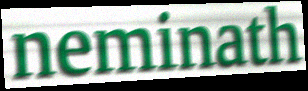
neminath